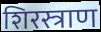
शिरस्त्राण